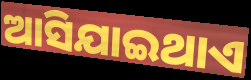
ଆସିଯାଇଥାଏ